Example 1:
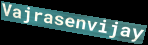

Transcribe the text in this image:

Vajrasenvijay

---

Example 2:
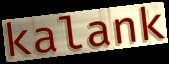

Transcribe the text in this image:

kalank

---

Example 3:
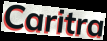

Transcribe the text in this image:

Caritra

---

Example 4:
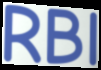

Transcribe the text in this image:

RBl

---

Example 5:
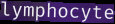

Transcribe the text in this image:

lymphocyte